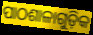
ପାଠଶାଳାଗୁଡ଼ିକ